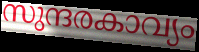
സുന്ദരകാവ്യം